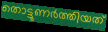
തൊട്ടുണർത്തിയത്